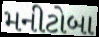
મનીટોબા